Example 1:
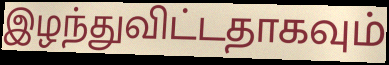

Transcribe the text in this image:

இழந்துவிட்டதாகவும்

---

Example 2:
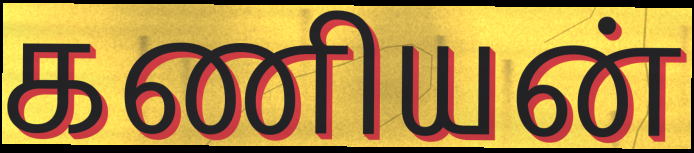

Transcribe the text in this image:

கணியன்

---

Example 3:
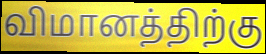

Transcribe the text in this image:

விமானத்திற்கு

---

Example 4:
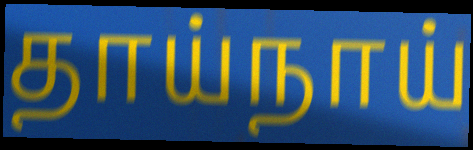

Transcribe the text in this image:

தாய்நாய்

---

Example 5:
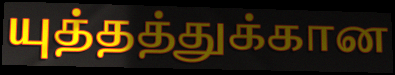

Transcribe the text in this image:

யுத்தத்துக்கான